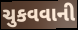
ચુકવવાની